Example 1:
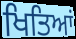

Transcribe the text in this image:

ਖਿਤਿਆਂ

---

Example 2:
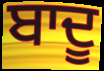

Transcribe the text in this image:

ਬਾਦੂ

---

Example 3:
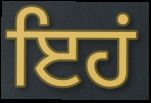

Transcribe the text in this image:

ਇਹਂ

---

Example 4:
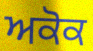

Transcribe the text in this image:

ਅਕੋਕ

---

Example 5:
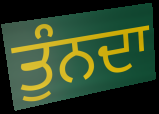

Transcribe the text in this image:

ਤੁੰਨਦਾ